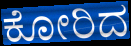
ಕೋರಿದ